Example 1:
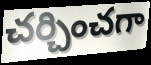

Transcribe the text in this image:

చర్చించగా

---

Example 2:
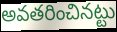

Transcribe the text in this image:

అవతరించినట్టు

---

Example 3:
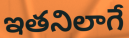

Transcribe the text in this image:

ఇతనిలాగే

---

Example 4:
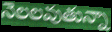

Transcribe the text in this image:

నెలలవుతున్నా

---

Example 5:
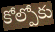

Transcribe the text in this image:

కోల్పోకు